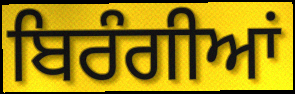
ਬਿਰੰਗੀਆਂ